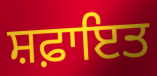
ਸ਼ਫ਼ਾਇਤ